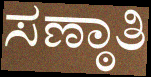
ಸಣ್ಠಾತಿ